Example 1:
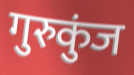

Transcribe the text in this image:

गुरुकुंज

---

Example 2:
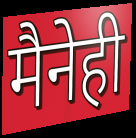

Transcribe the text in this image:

मैनेही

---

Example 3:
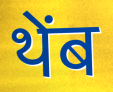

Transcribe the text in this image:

थेंब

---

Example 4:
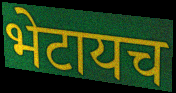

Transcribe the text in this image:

भेटायच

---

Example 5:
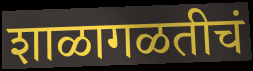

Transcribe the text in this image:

शाळागळतीचं